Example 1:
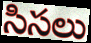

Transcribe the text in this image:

సిసలు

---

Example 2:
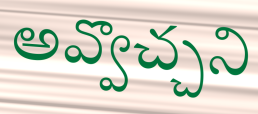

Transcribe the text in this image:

అవ్వొచ్చని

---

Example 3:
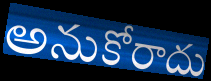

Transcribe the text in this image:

అనుకోరాదు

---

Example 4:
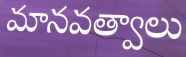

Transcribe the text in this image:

మానవత్వాలు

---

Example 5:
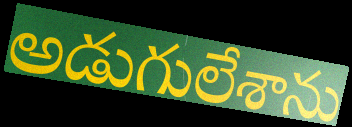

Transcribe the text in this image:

అడుగులేశాను